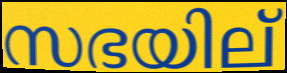
സഭയില്